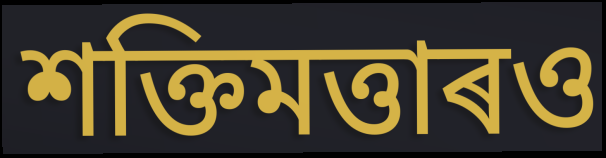
শক্তিমত্তাৰও